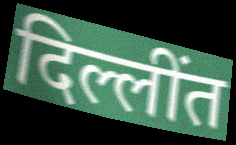
दिल्लींत